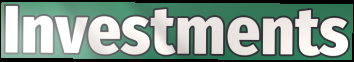
Investments